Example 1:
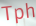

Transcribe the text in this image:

Tph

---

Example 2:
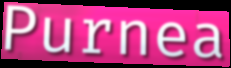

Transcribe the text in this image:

Purnea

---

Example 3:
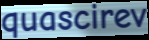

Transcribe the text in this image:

quascirev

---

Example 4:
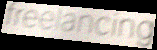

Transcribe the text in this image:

freelancing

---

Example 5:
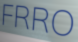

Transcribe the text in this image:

FRRO